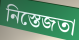
নিস্তেজতা